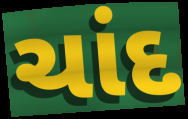
ચાંદ